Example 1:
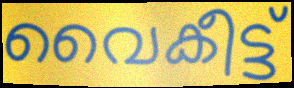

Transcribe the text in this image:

വൈകീട്ട്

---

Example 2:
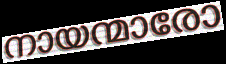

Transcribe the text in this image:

നായന്മാരോ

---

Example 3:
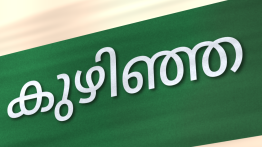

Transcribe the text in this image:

കുഴിഞ്ഞ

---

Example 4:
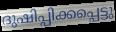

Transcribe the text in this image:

ദുഷിപ്പിക്കപ്പെട്ടു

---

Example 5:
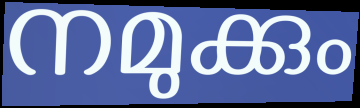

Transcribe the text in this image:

നമുക്കും